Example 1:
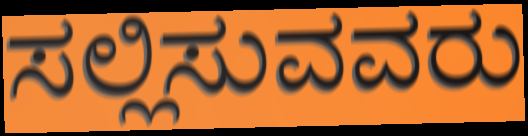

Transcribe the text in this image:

ಸಲ್ಲಿಸುವವರು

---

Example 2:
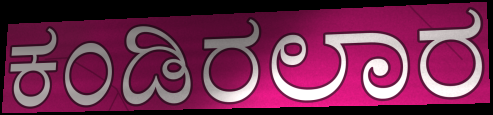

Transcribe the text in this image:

ಕಂಡಿರಲಾರ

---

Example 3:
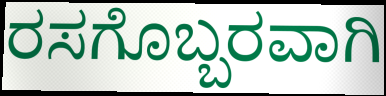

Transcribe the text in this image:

ರಸಗೊಬ್ಬರವಾಗಿ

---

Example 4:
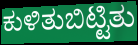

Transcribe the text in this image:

ಕುಳಿತುಬಿಟ್ಟಿತು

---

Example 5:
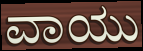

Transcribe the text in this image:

ವಾಯು